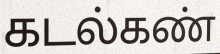
கடல்கண்